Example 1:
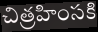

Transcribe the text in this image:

చిత్రహింసకి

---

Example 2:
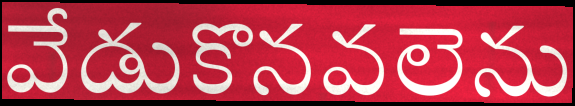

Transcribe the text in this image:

వేడుకొనవలెను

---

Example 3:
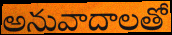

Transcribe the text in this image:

అనువాదాలతో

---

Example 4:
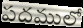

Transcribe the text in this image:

పదములో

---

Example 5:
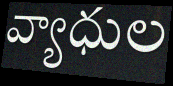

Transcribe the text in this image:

వ్యాధుల